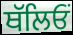
ਥੱਲਿਓਂ